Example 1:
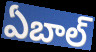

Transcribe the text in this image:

ఏబాల్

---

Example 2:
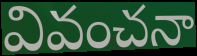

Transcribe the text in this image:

వివంచనా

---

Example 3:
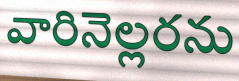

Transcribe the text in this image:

వారినెల్లరను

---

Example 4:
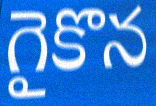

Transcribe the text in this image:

గైకొన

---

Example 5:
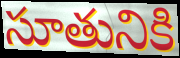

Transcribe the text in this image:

సూతునికి